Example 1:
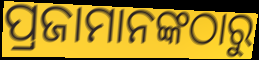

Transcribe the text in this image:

ପ୍ରଜାମାନଙ୍କଠାରୁ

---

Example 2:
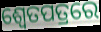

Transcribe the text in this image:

ଶ୍ଵେତପତ୍ରରେ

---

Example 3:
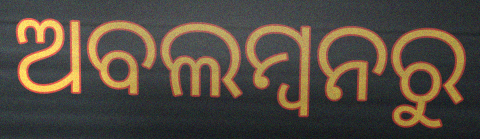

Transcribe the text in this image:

ଅବଲମ୍ବନରୁ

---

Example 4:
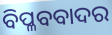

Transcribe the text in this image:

ବିପ୍ଳବବାଦର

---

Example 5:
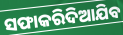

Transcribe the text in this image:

ସଫାକରିଦିଆଯିବ